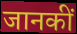
जानकीं